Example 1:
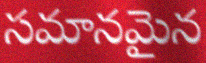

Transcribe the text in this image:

సమానమైన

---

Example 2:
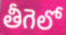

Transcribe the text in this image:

తీగెలో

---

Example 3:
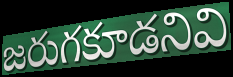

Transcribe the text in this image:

జరుగకూడనివి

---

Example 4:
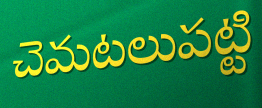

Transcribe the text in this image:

చెమటలుపట్టి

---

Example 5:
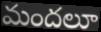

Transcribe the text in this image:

మందలూ